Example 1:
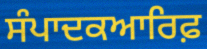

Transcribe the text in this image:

ਸੰਪਾਦਕਆਰਿਫ਼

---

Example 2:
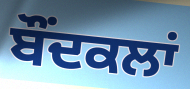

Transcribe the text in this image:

ਬੌਂਦਕਲਾਂ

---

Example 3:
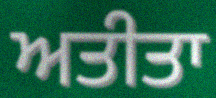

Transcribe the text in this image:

ਅਤੀਤਾ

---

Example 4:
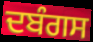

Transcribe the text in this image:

ਦਬੰਗਸ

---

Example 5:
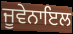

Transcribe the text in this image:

ਜੂਵੇਨਾਇਲ